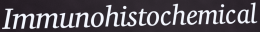
Immunohistochemical